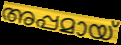
അപ്പമായ്